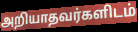
அறியாதவர்களிடம்